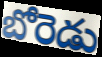
బోరెడు